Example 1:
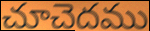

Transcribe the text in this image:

చూచెదము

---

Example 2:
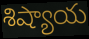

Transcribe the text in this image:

శిష్యాయ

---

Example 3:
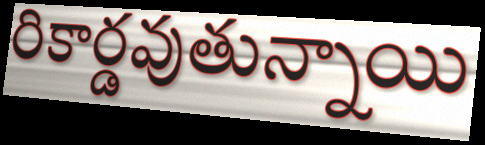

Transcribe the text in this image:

రికార్డవుతున్నాయి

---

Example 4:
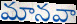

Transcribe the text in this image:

మానవా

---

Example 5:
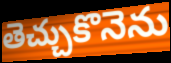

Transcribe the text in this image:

తెచ్చుకొనెను